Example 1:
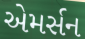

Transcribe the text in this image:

એમર્સન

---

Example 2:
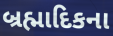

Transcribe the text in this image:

બ્રહ્માદિકના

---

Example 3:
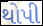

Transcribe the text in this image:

થોપી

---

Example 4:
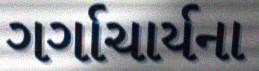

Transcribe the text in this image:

ગર્ગાચાર્યના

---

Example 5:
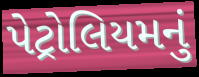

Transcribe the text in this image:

પેટ્રોલિયમનું